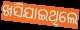
ଖସିଯାଇଥିଲେ